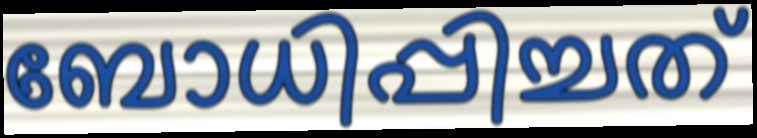
ബോധിപ്പിച്ചത്